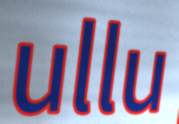
ullu